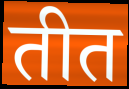
तीत